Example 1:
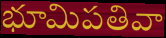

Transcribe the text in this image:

భూమిపతివా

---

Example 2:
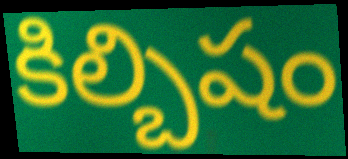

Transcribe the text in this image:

కిల్బిషం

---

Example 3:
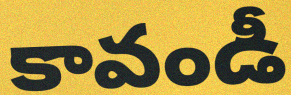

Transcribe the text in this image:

కావండీ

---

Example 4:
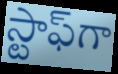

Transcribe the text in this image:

స్టాఫ్‌గా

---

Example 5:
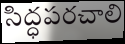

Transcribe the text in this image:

సిద్ధపరచాలి